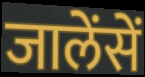
जालेंसें